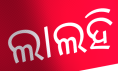
ଲାଲହି